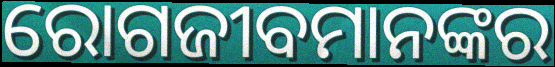
ରୋଗଜୀବମାନଙ୍କର